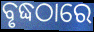
ବୃଦ୍ଧଠାରେ